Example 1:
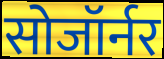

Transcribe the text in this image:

सोजॉर्नर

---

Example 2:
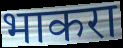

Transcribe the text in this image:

भाकरा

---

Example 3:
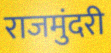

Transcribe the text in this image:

राजमुंदरी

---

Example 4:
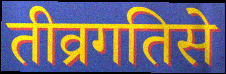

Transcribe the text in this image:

तीव्रगतिसे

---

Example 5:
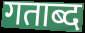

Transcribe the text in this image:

गताब्द